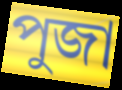
পুজা